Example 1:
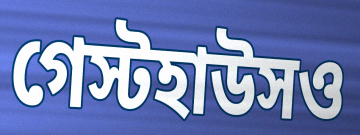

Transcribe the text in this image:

গেস্টহাউসও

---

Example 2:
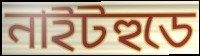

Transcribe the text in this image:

নাইটহুডে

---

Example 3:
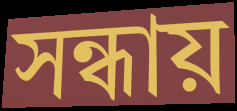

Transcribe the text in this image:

সন্ধায়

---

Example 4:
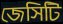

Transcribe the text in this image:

জেসিটি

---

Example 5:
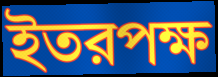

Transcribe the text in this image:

ইতরপক্ষ